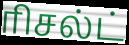
ரிசல்ட்